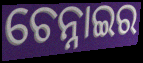
ଚେନ୍ନାଇର